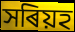
সৰিয়হ